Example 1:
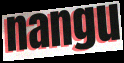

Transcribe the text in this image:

nangu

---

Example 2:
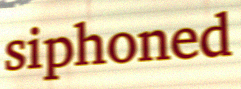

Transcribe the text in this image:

siphoned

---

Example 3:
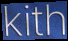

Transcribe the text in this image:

kith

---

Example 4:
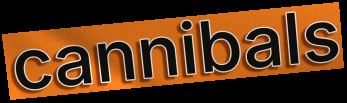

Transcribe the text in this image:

cannibals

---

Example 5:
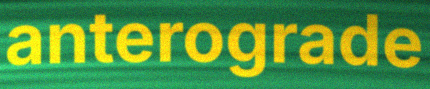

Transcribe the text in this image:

anterograde